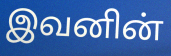
இவனின்